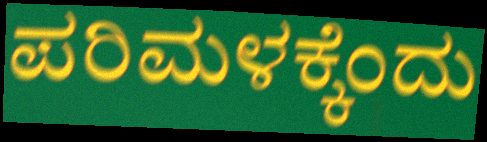
ಪರಿಮಳಕ್ಕೆಂದು